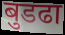
बुडढा